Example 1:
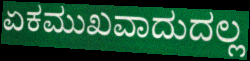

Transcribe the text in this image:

ಏಕಮುಖವಾದುದಲ್ಲ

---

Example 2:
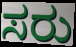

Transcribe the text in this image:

ಸರು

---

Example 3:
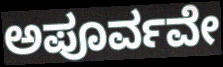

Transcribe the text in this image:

ಅಪೂರ್ವವೇ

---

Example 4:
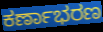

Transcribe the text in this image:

ಕರ್ಣಾಭರಣ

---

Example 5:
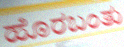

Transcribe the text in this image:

ಹೊರಬಂತು